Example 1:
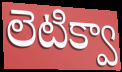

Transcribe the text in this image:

లెటిక్వా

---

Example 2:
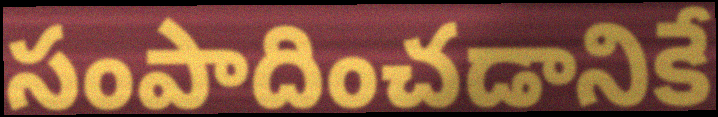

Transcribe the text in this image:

సంపాదించడానికే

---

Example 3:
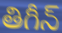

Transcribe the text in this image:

తిగీన్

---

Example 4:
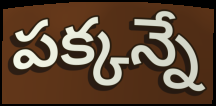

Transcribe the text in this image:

పక్కన్నే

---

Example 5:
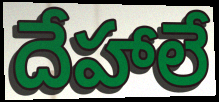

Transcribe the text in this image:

దేహాలే